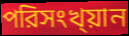
পরিসংখ্য়ান